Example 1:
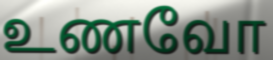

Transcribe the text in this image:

உணவோ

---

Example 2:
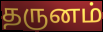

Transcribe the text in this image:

தருனம்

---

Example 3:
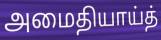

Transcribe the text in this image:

அமைதியாய்த்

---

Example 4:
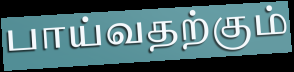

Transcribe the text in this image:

பாய்வதற்கும்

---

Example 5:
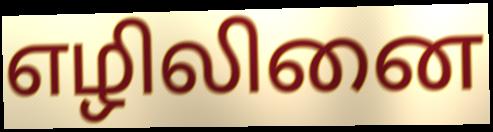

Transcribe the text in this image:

எழிலினை